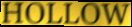
HOLLOW